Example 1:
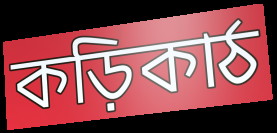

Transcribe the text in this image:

কড়িকাঠ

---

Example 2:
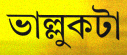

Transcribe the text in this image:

ভাল্লুকটা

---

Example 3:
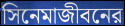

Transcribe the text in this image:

সিনেমাজীবনের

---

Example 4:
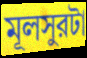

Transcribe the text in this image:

মূলসুরটা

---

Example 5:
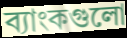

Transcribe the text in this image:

ব্যাংকগুলো